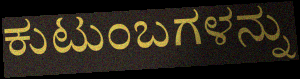
ಕುಟುಂಬಗಳನ್ನು